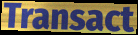
Transact